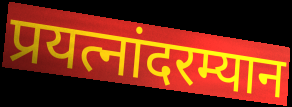
प्रयत्नांदरम्यान